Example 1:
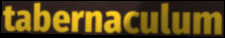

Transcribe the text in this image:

tabernaculum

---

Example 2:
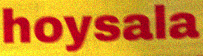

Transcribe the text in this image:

hoysala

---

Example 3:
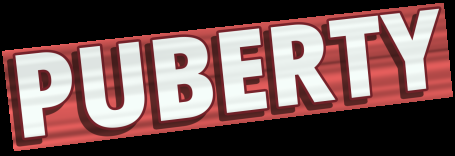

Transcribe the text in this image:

PUBERTY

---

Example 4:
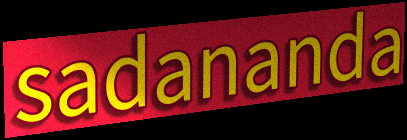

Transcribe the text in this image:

sadananda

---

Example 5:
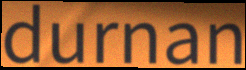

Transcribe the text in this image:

durnan